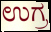
ಉಗ್ರ